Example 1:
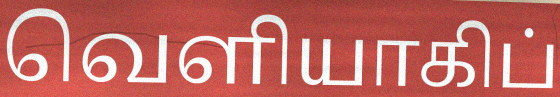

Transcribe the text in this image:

வெளியாகிப்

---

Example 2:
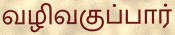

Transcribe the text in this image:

வழிவகுப்பார்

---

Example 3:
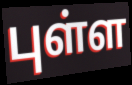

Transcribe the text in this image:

புள்ள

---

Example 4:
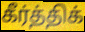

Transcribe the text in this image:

கீர்த்திக்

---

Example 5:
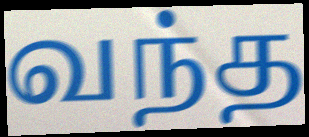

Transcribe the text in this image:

வந்த